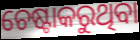
ଚେଷ୍ଟାକରୁଥିବା